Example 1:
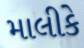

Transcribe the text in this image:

માલીકે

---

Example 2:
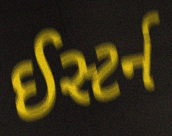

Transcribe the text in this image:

ઈસ્ટર્ન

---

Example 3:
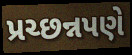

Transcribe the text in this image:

પ્રચ્છન્નપણે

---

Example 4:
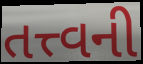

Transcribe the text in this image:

તત્ત્વની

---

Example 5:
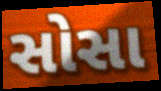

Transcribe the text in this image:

સોસા